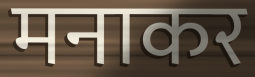
मनाकर